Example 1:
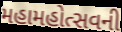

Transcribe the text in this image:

મહામહોત્સવની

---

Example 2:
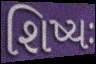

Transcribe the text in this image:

શિષ્યઃ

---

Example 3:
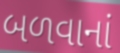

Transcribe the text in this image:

બળવાનાં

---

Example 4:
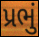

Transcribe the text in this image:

પ્રભું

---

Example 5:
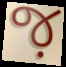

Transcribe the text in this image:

જ઼